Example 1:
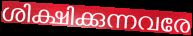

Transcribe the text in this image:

ശിക്ഷിക്കുന്നവരേ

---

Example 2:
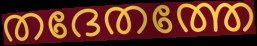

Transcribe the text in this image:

തദേതത്തേ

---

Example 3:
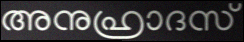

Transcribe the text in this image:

അനുഹ്രാദസ്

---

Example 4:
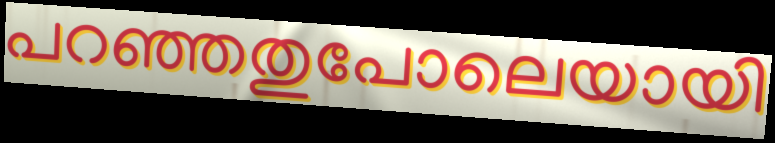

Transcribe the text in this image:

പറഞ്ഞതുപോലെയായി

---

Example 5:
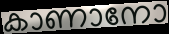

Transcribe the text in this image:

കാണാനോ